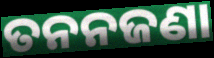
ତନନଜଣା